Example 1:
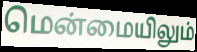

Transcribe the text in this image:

மென்மையிலும்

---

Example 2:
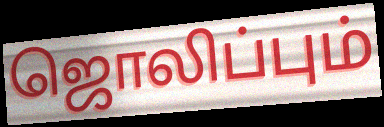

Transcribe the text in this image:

ஜொலிப்பும்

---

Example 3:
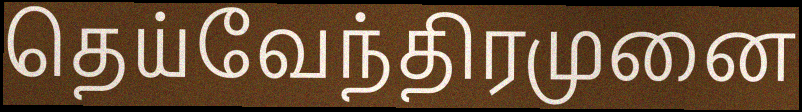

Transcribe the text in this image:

தெய்வேந்திரமுனை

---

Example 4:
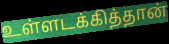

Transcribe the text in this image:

உள்ளடக்கித்தான்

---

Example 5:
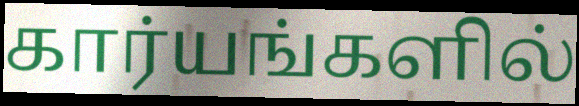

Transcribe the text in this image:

கார்யங்களில்